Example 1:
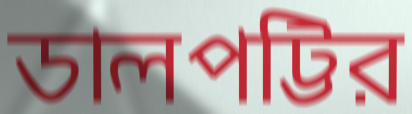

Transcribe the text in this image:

ডালপট্টির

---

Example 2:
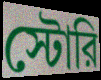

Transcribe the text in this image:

স্টোরি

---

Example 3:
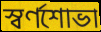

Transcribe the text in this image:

স্বর্ণশোভা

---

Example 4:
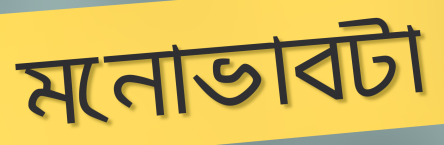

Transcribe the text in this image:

মনোভাবটা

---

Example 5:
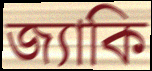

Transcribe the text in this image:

জ্যাকি